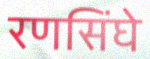
रणसिंघे